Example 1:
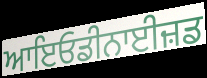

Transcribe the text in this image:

ਆਇਓਡੀਨਾਈਜ਼ਡ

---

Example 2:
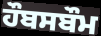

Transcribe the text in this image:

ਹੌਬਸਬੌਮ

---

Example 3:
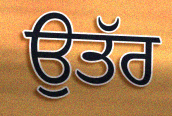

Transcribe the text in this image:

ਉਤੱਰ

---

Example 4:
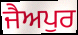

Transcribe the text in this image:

ਜੈਅਪੁਰ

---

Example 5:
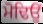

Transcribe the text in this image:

ਮੋਢਿਉਂ